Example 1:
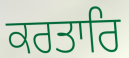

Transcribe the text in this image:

ਕਰਤਾਰਿ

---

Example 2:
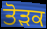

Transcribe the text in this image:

ਤੋੜਕ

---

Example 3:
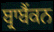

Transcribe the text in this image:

ਬ੍ਰਾਬੈਂਕਨ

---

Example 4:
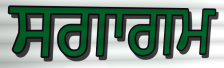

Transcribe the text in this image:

ਸਗਾਗਮ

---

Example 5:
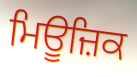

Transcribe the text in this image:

ਮਿਊਜ਼ਿਕ